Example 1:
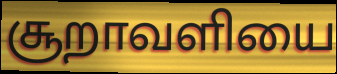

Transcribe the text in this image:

சூறாவளியை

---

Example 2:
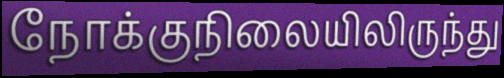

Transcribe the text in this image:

நோக்குநிலையிலிருந்து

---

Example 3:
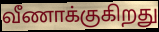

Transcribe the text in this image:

வீணாக்குகிறது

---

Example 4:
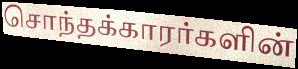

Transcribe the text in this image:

சொந்தக்காரர்களின்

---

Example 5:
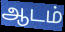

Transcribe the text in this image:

ஆடம்